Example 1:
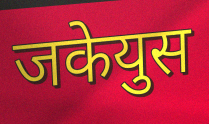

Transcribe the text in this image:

जकेयुस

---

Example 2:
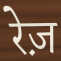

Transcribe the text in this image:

रेज़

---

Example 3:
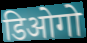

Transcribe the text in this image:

डिओगो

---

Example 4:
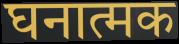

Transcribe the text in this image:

घनात्मक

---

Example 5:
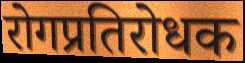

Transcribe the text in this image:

रोगप्रतिरोधक